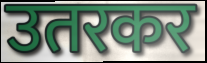
उतरकर